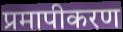
प्रमापीकरण